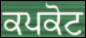
ਕਪਕੋਟ